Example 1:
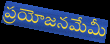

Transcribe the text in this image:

ప్రయోజనమేమీ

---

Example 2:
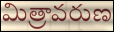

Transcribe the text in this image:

మిత్రావరుణ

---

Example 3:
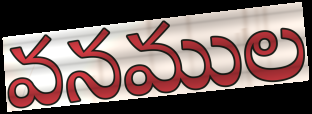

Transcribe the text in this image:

వనముల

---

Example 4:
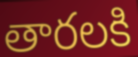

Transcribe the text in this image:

తారలకి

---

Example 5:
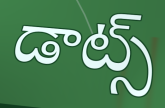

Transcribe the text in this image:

డాట్స్